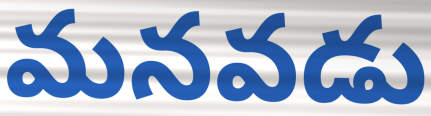
మనవడు